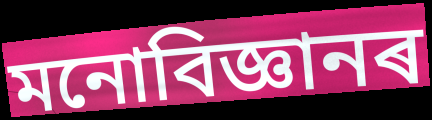
মনোবিজ্ঞানৰ